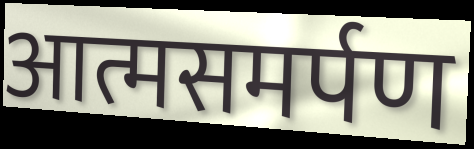
आत्मसमर्पण